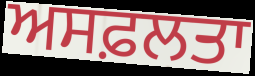
ਅਸਫ਼ਲਤਾ